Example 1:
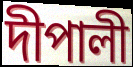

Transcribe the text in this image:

দীপালী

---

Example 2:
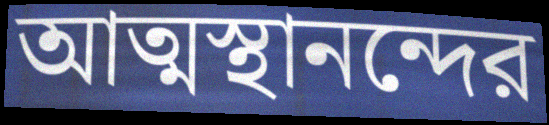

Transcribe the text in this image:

আত্মস্থানন্দের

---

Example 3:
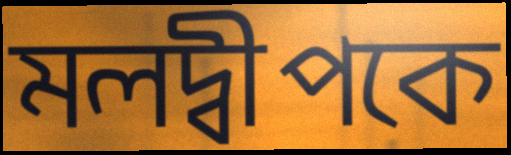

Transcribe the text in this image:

মলদ্বীপকে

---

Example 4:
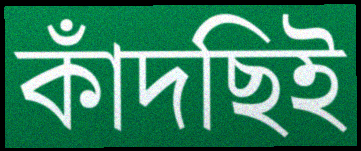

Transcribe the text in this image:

কাঁদছিই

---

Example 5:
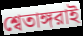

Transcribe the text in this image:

শ্বেতাঙ্গরাই